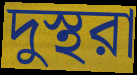
দুস্থরা